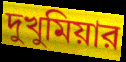
দুখুমিয়ার